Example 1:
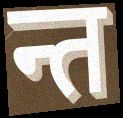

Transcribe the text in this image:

न्त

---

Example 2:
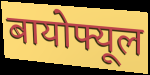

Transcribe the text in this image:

बायोफ्यूल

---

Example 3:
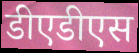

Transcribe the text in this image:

डीएडीएस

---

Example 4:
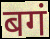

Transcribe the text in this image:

बगं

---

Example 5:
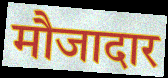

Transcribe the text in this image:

मौजादार